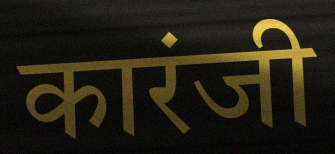
कारंजी